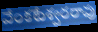
వేంకటేశ్వరరావు